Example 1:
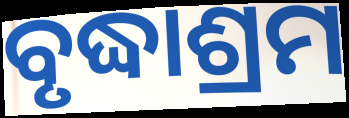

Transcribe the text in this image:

ବୃଦ୍ଧାଶ୍ରମ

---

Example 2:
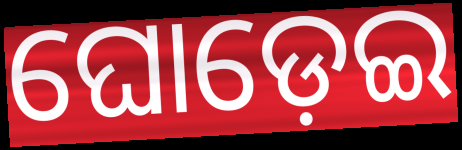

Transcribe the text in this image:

ଘୋଡ଼େଇ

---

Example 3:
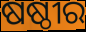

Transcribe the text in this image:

ଷଷ୍ଠୀର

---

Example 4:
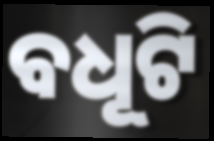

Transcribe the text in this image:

ବଧୂଟି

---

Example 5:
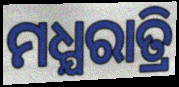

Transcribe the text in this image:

ମଧ୍ଯରାତ୍ରି